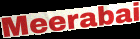
Meerabai